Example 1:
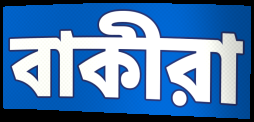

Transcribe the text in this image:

বাকীরা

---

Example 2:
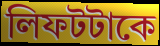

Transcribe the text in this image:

লিফটটাকে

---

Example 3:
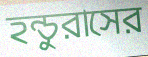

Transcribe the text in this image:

হন্ডুরাসের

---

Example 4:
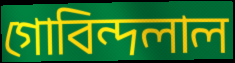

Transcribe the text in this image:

গোবিন্দলাল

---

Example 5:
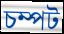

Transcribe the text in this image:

চম্পট